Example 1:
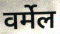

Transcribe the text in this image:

वर्मेल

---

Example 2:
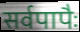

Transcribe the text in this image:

सर्वपापैः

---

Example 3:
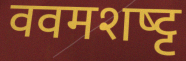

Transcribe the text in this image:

ववमशष्ट्ट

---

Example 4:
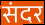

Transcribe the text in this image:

संदर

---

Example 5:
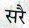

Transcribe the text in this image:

सरै